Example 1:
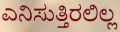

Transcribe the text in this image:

ಎನಿಸುತ್ತಿರಲಿಲ್ಲ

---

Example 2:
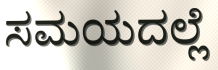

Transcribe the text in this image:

ಸಮಯದಲ್ಲೆ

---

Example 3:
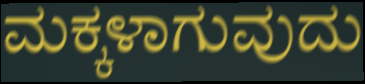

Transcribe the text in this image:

ಮಕ್ಕಳಾಗುವುದು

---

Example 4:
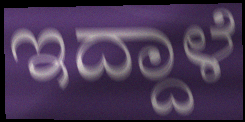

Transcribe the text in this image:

ಇದ್ದಾಳೆ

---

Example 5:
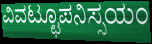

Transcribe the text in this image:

ವಿವಟ್ಟೂಪನಿಸ್ಸಯಂ